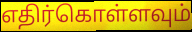
எதிர்கொள்ளவும்